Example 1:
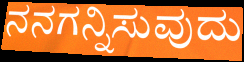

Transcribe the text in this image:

ನನಗನ್ನಿಸುವುದು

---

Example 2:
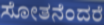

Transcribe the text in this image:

ಸೋತನೆಂದರೆ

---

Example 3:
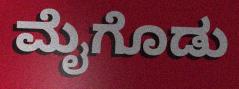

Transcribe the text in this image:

ಮೈಗೊಡು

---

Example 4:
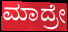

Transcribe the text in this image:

ಮಾದ್ರೇ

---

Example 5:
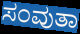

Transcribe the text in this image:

ಸಂವುತಾ